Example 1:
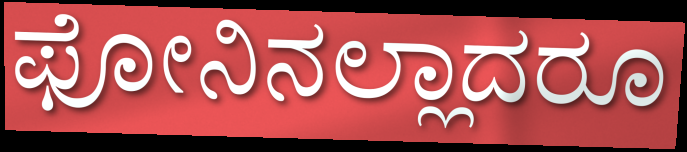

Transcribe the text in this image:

ಫೋನಿನಲ್ಲಾದರೂ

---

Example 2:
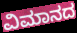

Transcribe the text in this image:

ವಿಮಾನದ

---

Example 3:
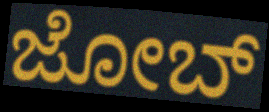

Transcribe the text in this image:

ಜೋಬ್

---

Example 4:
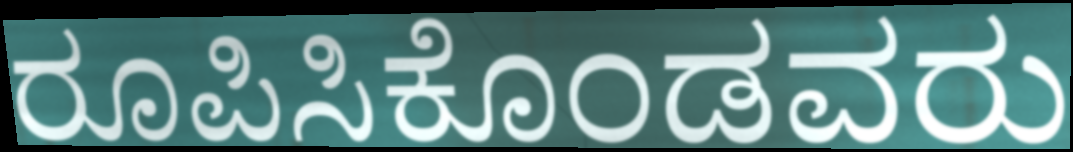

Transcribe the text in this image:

ರೂಪಿಸಿಕೊಂಡವರು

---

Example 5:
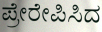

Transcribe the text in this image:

ಪ್ರೇರೇಪಿಸಿದ